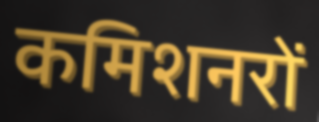
कमिशनरों